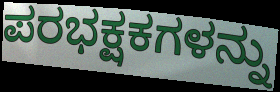
ಪರಭಕ್ಷಕಗಳನ್ನು